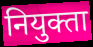
नियुक्ता